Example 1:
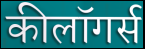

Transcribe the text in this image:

कीलॉगर्स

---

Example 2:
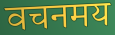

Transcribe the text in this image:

वचनमय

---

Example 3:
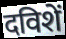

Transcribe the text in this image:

दविशें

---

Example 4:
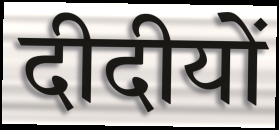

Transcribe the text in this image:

दीदीयों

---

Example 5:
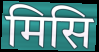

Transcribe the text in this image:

मिसि